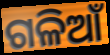
ଗଳିଆଁ